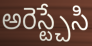
అరెస్ట్చేసి